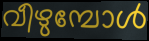
വീഴുമ്പോൾ